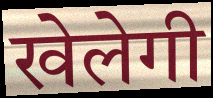
खेलेगी